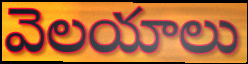
వెలయాలు